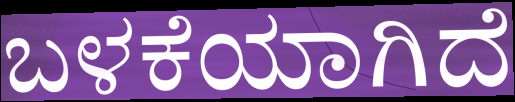
ಬಳಕೆಯಾಗಿದೆ